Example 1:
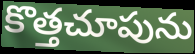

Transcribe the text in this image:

కొత్తచూపును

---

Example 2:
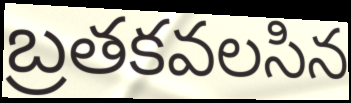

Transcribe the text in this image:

బ్రతకవలసిన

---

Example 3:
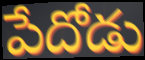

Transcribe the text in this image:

పేదోడు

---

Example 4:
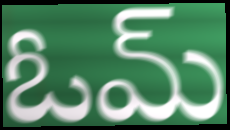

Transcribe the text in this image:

ఓమ్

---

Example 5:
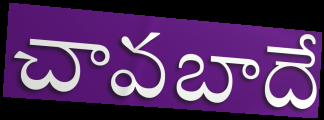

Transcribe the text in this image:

చావబాదే